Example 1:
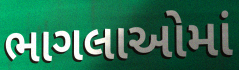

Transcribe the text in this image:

ભાગલાઓમાં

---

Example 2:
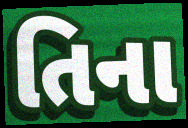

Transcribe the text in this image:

તિના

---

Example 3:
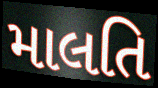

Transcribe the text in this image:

માલતિ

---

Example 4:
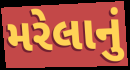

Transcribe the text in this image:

મરેલાનું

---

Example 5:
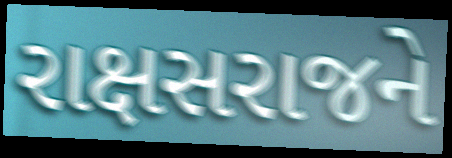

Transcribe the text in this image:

રાક્ષસરાજને